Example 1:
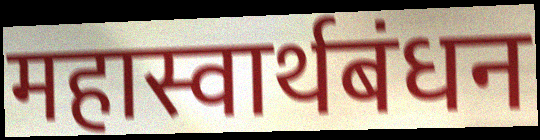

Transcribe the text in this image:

महास्वार्थबंधन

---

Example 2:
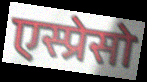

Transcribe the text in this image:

एस्प्रेसो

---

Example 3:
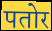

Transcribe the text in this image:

पतोर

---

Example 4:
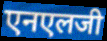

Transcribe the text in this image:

एनएलजी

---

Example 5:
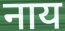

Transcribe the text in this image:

नाय